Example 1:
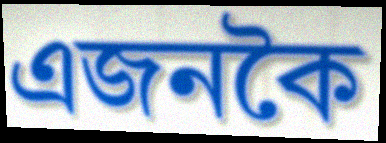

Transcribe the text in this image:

এজনকৈ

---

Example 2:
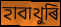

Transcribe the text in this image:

হাবাথুৰি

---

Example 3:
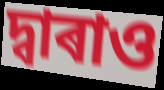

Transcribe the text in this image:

দ্বাৰাও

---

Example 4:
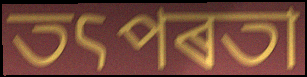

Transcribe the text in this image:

তৎপৰতা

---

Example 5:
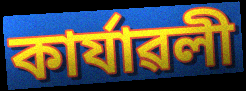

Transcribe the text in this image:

কাৰ্যাৱলী